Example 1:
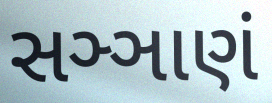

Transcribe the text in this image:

સઞ્ઞાણં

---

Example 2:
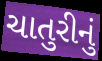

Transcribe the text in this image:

ચાતુરીનું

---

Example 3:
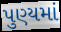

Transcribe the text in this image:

પુણ્યમાં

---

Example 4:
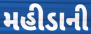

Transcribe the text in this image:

મહીડાની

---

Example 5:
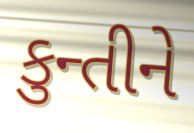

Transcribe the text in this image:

કુન્તીને